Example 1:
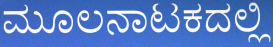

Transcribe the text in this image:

ಮೂಲನಾಟಕದಲ್ಲಿ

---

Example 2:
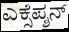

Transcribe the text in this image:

ಎಕ್ಸೆಪ್ಶನ್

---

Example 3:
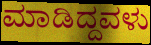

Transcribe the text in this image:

ಮಾಡಿದ್ದವಳು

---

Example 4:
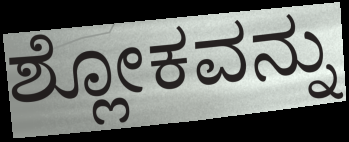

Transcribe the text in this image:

ಶ್ಲೋಕವನ್ನು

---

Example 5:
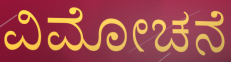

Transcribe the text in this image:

ವಿಮೋಚನೆ